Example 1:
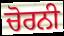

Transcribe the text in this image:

ਚੋਰਨੀ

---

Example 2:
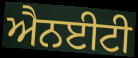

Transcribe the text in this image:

ਐਨਈਟੀ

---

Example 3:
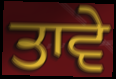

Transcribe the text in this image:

ਤਾਵੇ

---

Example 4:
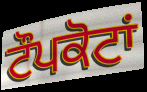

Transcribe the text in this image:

ਟੌਪਕੋਟਾਂ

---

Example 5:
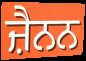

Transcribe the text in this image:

ਜ਼ੈਨਨ